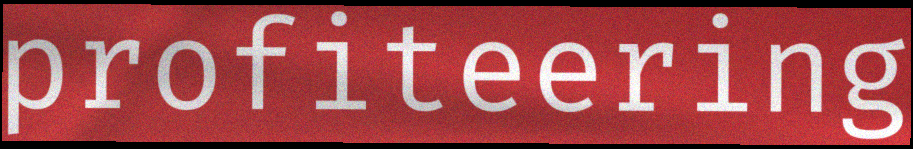
profiteering